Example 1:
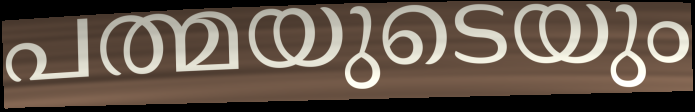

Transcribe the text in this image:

പത്മയുടെയും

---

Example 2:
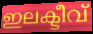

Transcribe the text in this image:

ഇലക്ടീവ്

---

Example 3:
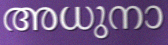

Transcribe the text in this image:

അധുനാ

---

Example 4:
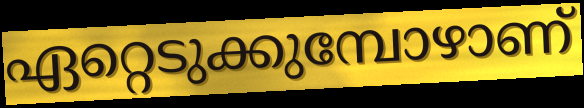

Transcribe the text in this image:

ഏറ്റെടുക്കുമ്പോഴാണ്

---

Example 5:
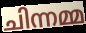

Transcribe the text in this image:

ചിന്നമ്മ